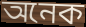
অনেক